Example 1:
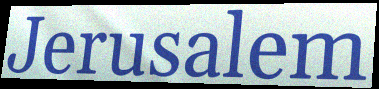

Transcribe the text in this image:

Jerusalem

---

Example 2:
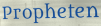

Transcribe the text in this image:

Propheten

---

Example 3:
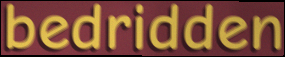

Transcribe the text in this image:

bedridden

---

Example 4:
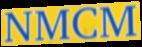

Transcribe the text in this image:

NMCM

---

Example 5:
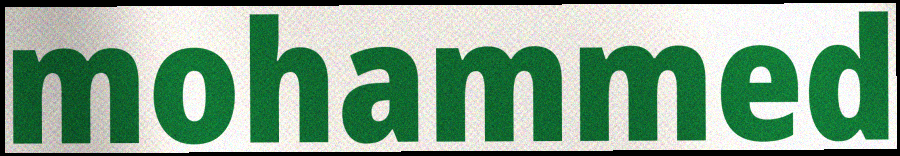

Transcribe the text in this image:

mohammed